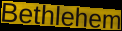
Bethlehem